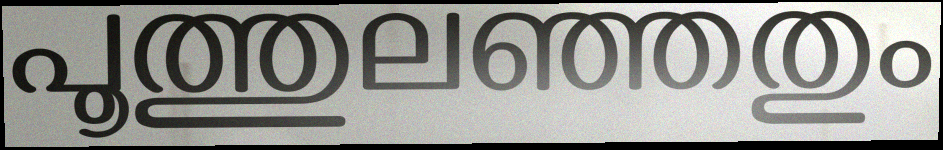
പൂത്തുലഞ്ഞതും